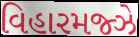
વિહારમજ્ઝે